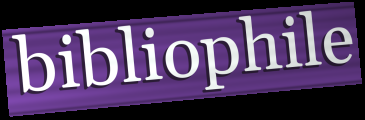
bibliophile